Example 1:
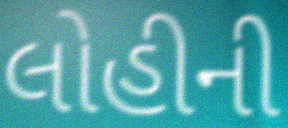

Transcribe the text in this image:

લોહીની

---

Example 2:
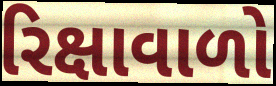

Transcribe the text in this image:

રિક્ષાવાળો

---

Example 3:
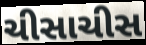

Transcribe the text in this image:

ચીસાચીસ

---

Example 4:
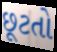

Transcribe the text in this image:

છૂટતો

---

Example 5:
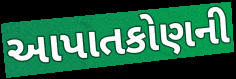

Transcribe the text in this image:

આપાતકોણની